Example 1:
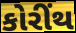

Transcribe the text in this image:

કોરીંથ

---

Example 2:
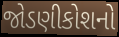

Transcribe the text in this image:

જોડણીકોશનો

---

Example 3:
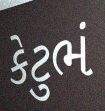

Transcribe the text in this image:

કેટુભં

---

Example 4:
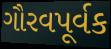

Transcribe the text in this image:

ગૌરવપૂર્વક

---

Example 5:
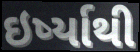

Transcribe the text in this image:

ઇર્ષ્યાથી